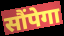
सौंपेगा